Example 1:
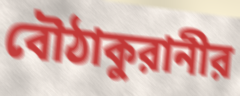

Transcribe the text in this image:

বৌঠাকুরানীর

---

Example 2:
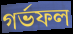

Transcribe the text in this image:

গর্ভফল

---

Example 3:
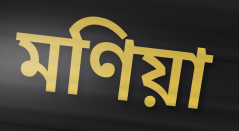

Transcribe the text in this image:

মণিয়া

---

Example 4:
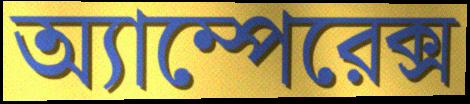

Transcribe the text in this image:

অ্যাম্পেরেক্স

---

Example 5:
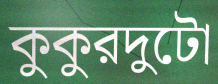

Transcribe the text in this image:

কুকুরদুটো